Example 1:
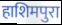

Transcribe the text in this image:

हाशिमपुरा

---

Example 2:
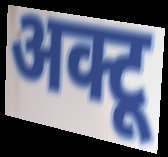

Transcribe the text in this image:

अक्टू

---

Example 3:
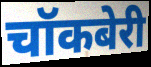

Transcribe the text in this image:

चॉकबेरी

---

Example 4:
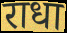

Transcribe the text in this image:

राधा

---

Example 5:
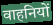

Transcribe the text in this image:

वाहनियों